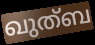
ഖുത്ബ